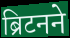
ब्रिटनने